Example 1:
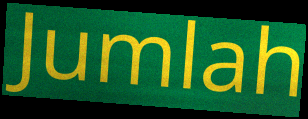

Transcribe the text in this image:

Jumlah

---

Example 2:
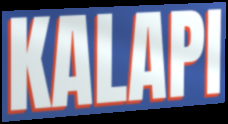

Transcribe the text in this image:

KALAPI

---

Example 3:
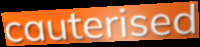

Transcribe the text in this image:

cauterised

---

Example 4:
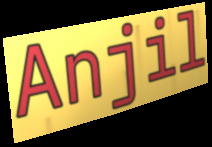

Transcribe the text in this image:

Anjil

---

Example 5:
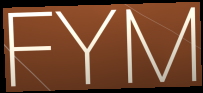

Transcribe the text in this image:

FYM